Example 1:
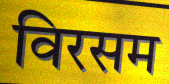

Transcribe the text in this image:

विरसम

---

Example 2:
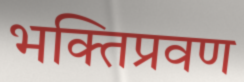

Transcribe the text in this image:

भक्तिप्रवण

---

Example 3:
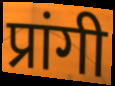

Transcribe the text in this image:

प्रांगी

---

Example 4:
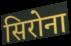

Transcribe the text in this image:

सिरोना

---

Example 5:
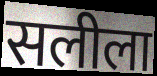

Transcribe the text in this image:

सलीला